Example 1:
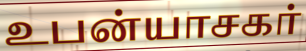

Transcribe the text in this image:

உபன்யாசகர்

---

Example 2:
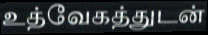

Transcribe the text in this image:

உத்வேகத்துடன்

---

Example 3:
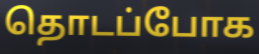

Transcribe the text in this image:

தொடப்போக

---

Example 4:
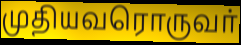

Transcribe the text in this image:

முதியவரொருவர்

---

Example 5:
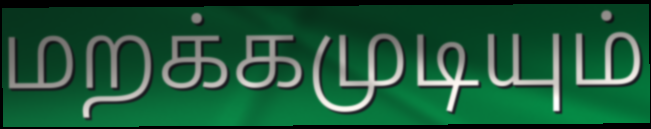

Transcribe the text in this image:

மறக்கமுடியும்